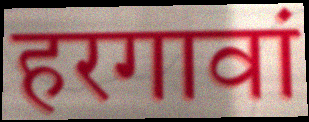
हरगावां